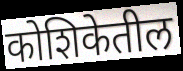
कोशिकेतील